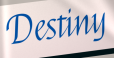
Destiny